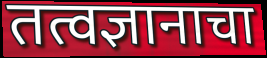
तत्वज्ञानाचा